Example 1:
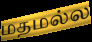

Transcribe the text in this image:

மதமல்ல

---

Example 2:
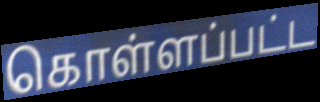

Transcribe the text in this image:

கொள்ளப்பட்ட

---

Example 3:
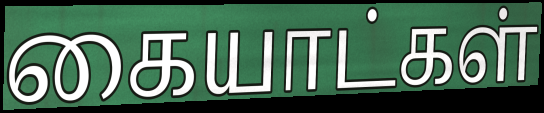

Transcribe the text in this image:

கையாட்கள்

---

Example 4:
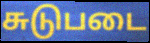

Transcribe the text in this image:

சுடுபடை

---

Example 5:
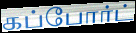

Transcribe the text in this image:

கப்போர்ட்